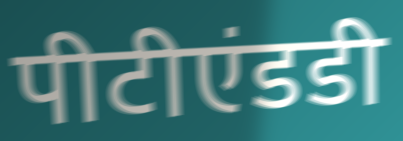
पीटीएंडडी